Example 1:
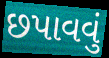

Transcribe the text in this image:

છપાવવું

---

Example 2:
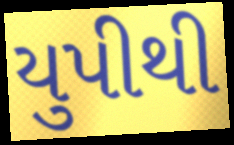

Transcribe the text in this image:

યુપીથી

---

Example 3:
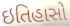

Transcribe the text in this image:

ઇતિહાસો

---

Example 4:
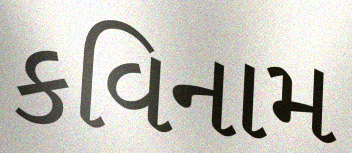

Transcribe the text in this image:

કવિનામ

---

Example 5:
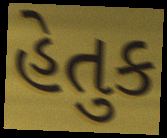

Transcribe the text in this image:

હેતુક